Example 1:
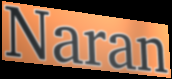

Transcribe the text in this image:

Naran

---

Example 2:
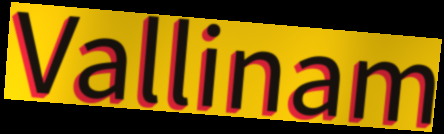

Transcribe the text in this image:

Vallinam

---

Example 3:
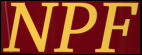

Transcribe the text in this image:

NPF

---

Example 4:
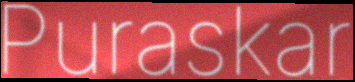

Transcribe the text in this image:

Puraskar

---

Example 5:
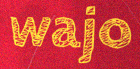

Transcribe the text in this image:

wajo